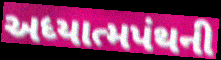
અધ્યાત્મપંથની